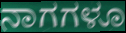
ನಾಗಗಳೂ